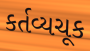
કર્તવ્યચૂક